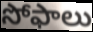
సోఫాలు